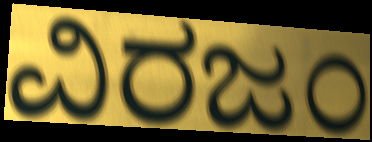
ವಿರಜಂ